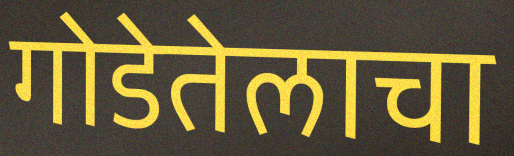
गोडेतेलाचा